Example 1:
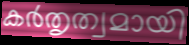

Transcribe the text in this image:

കർതൃത്വമായി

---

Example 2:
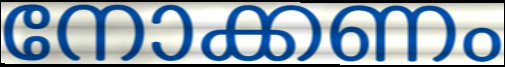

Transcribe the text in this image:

നോക്കണം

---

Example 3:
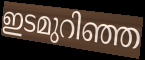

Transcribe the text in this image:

ഇടമുറിഞ്ഞ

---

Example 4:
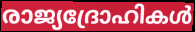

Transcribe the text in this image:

രാജ്യദ്രോഹികൾ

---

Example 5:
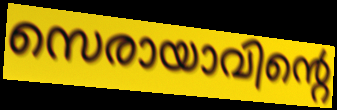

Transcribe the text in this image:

സെരായാവിന്റെ